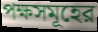
পক্ষসমূহের